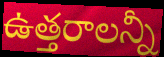
ఉత్తరాలన్నీ